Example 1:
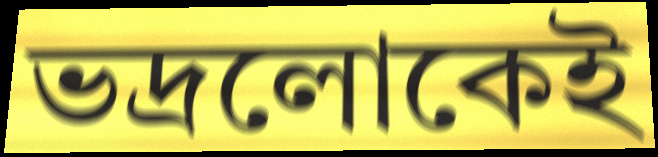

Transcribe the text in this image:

ভদ্রলোকেই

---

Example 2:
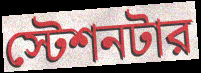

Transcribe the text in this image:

স্টেশনটার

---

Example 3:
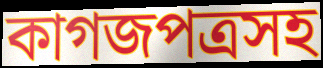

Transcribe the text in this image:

কাগজপত্রসহ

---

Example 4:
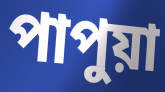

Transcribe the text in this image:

পাপুয়া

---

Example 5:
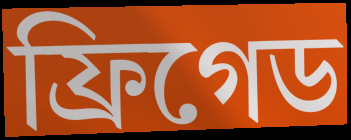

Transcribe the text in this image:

ফ্রিগেড